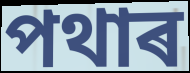
পথাৰ